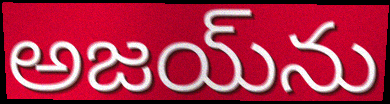
అజయ్‌ను